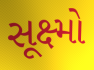
સૂક્ષ્મો